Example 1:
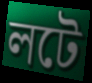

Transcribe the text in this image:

লটে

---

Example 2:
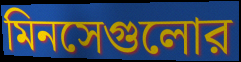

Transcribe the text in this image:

মিনসেগুলোর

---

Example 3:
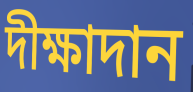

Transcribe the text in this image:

দীক্ষাদান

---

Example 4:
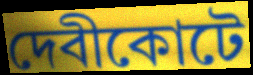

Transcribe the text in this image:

দেবীকোটে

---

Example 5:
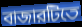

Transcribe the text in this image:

বাজারটিতে